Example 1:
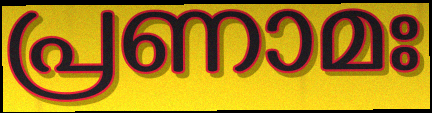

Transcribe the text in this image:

പ്രണാമഃ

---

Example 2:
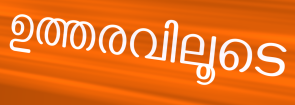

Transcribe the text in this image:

ഉത്തരവിലൂടെ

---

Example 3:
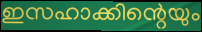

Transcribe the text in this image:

ഇസഹാക്കിന്റെയും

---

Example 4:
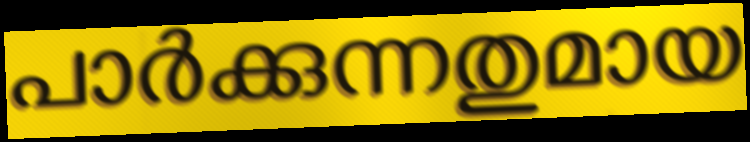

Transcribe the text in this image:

പാർക്കുന്നതുമായ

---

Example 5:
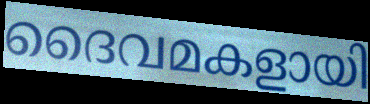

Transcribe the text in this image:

ദൈവമകളായി